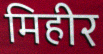
मिहीर